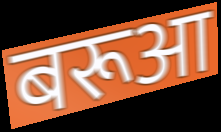
बरूआ